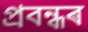
প্ৰবন্ধৰ